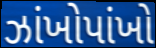
ઝાંખોપાંખો